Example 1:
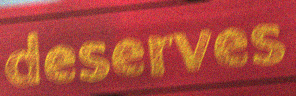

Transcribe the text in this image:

deserves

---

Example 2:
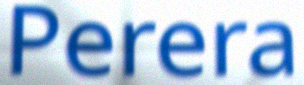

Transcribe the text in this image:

Perera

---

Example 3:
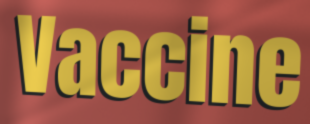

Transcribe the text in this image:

Vaccine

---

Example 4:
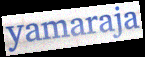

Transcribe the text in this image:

yamaraja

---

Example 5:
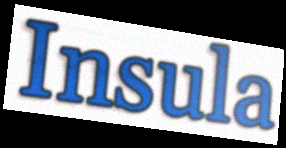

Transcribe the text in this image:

Insula